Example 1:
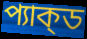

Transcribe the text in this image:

প্যাক্‌ড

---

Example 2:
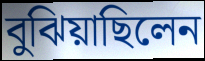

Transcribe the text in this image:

বুঝিয়াছিলেন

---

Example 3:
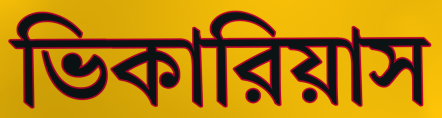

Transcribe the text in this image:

ভিকারিয়াস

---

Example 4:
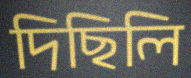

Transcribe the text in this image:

দিছিলি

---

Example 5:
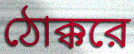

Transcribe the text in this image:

ঠোক্করে